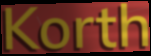
Korth